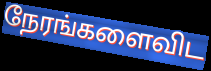
நேரங்களைவிட